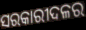
ସରକାରୀଦଳର